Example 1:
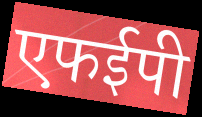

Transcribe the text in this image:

एफईपी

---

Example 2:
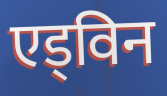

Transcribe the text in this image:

एड्विन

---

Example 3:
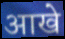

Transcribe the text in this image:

आखे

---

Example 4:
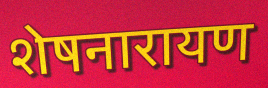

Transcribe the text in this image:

शेषनारायण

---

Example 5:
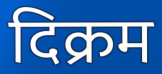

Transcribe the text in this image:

दिक्रम